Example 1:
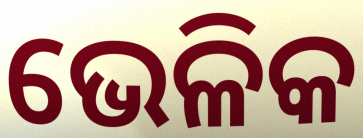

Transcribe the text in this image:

ଭେଳିକ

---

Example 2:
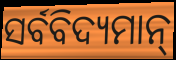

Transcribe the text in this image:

ସର୍ବବିଦ୍ୟମାନ୍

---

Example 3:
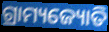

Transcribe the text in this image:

ଗ୍ରାମ୍ୟଜ୍ୟୋତି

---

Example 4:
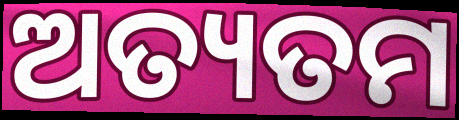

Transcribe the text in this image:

ଅତ୍ୟତମ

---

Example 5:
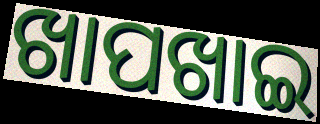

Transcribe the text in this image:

ଖାପଖାଇ